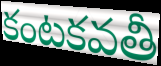
కంటకవతీ